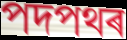
পদপথৰ